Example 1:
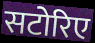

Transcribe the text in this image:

सटोरिए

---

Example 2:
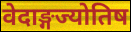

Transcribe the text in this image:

वेदाङ्गज्योतिष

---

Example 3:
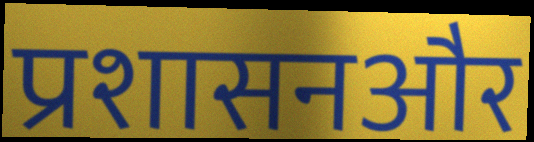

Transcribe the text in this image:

प्रशासनऔर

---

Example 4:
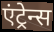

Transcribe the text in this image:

एंट्रेन्स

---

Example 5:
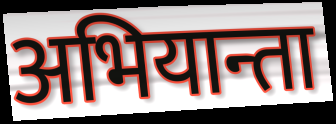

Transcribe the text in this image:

अभियान्ता